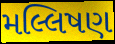
મલ્લિષણ